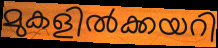
മുകളിൽക്കയറി